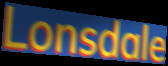
Lonsdale